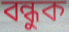
বন্ধুক